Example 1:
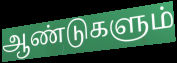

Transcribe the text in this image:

ஆண்டுகளும்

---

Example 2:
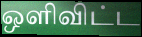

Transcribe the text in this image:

ஒளிவிட்ட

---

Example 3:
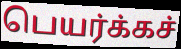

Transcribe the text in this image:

பெயர்க்கச்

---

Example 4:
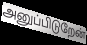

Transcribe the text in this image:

அனுப்பிடுறேன்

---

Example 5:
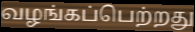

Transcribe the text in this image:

வழங்கப்பெற்றது